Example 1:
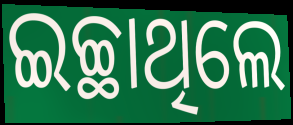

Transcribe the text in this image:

ଇଚ୍ଛାଥିଲେ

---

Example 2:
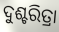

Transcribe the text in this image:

ଦୁଶ୍ଚରିତ୍ରା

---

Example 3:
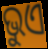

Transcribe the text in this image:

ଭୁଏ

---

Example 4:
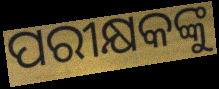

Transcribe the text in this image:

ପରୀକ୍ଷକଙ୍କୁ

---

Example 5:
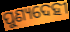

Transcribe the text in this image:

ପୁଣ୍ୟଦେହୀ